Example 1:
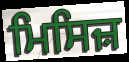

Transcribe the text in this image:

ਮਿਸਿਜ਼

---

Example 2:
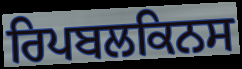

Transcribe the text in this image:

ਰਿਪਬਲਕਿਨਸ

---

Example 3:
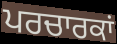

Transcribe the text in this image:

ਪਰਚਾਰਕਾਂ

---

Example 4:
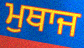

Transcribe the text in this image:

ਮੁਥਾਜ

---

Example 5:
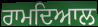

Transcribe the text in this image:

ਰਾਮਦਿਆਲ